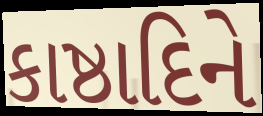
કાષ્ઠાદિને